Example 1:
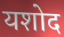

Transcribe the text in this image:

यशोद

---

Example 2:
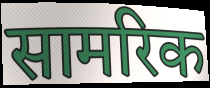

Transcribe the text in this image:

सामरिक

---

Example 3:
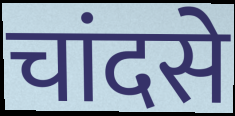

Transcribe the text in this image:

चांदसे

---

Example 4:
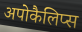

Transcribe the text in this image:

अपोकैलिप्स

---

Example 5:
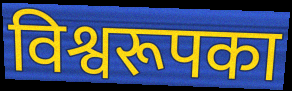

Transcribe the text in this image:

विश्वरूपका